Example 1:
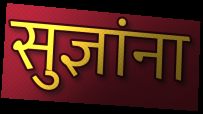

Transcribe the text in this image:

सुज्ञांना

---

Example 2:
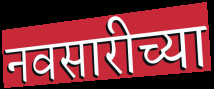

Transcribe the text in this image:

नवसारीच्या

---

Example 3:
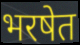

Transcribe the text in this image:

भरषेत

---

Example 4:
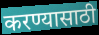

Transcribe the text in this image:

करण्‍यासाठी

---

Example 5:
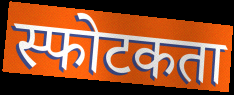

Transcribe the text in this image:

स्फोटकता